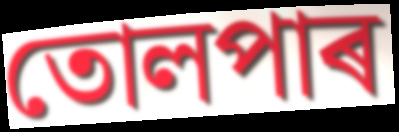
তোলপাৰ